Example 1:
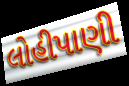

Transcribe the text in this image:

લોહીપાણી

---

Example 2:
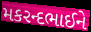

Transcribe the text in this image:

મકરન્દભાઈને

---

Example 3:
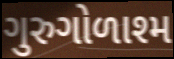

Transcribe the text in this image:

ગુરુગોળાશ્મ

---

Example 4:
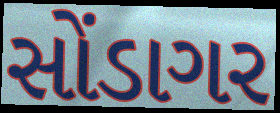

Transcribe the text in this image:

સોંડાગર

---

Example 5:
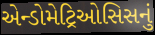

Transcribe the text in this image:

એન્ડોમેટ્રિઓસિસનું